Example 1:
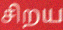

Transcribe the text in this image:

சிறய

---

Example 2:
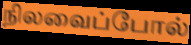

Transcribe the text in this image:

நிலவைப்போல்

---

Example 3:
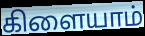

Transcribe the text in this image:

கிளையாம்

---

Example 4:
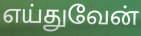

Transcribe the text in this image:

எய்துவேன்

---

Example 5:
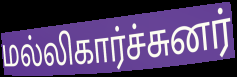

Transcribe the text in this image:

மல்லிகார்ச்சுனர்